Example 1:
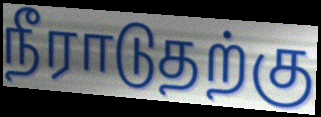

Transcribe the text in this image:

நீராடுதற்கு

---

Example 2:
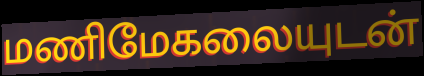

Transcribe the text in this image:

மணிமேகலையுடன்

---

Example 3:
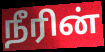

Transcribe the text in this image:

நீரின்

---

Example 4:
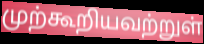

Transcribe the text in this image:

முற்கூறியவற்றுள்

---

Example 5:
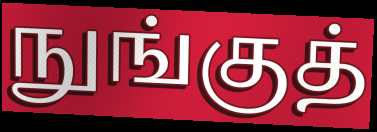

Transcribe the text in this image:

நுங்குத்